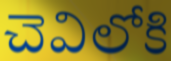
చెవిలోకి